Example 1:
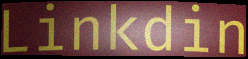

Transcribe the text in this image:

Linkdin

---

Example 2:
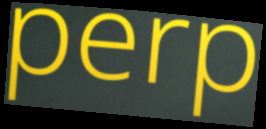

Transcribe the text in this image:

perp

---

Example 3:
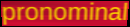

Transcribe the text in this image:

pronominal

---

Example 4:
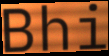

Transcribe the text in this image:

Bhi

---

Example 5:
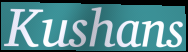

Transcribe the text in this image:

Kushans